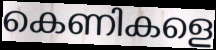
കെണികളെ